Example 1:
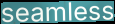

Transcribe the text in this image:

seamless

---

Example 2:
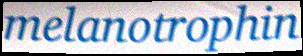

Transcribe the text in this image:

melanotrophin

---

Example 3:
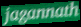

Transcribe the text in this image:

jagannath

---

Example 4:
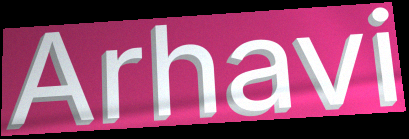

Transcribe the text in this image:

Arhavi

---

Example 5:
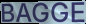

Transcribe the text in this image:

BAGGE